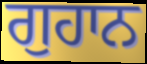
ਗੁਹਾਨ